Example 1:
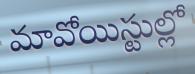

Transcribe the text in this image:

మావోయిస్టుల్లో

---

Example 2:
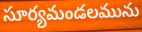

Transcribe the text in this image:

సూర్యమండలమును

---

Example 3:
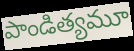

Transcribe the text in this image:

పాండిత్యమూ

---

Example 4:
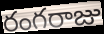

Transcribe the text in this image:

రంగరాజు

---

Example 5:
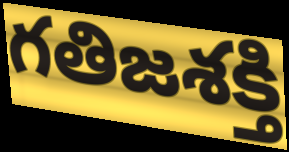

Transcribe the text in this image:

గతిజశక్తి